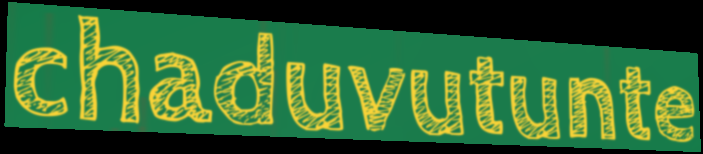
chaduvutunte